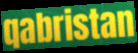
qabristan